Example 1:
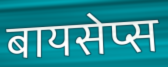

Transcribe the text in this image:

बायसेप्स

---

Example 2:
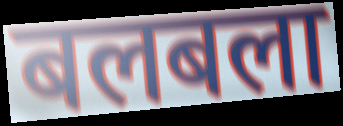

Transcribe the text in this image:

बलबला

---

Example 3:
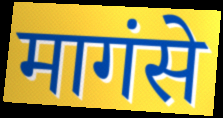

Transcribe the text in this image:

मागंसे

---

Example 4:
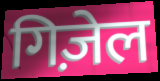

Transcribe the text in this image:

गिज़ेल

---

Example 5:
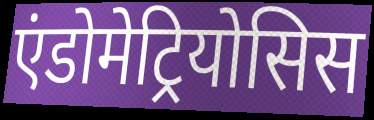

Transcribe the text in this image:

एंडोमेट्रियोसिस